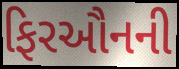
ફિરઔનની